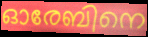
ഓരേബിനെ